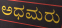
ಅಧಮರು